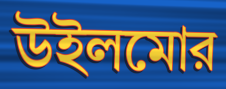
উইলমোর